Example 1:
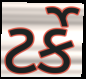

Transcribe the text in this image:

ટર્કે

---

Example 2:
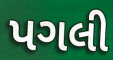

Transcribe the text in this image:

પગલી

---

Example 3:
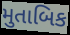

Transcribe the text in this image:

મુતાબિક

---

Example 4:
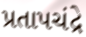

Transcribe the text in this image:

પ્રતાપચંદ્રે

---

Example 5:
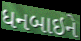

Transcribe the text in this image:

ધનબાઇને